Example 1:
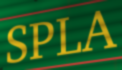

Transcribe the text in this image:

SPLA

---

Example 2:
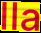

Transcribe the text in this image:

IIa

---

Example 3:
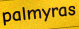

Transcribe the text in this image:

palmyras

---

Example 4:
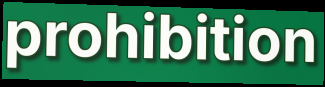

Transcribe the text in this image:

prohibition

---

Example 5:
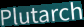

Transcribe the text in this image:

Plutarch